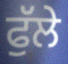
ਫੁੱਲੇ